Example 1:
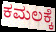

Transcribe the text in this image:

ಕಮಲಕ್ಕೆ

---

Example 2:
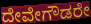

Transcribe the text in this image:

ದೇವೇಗೌಡರೇ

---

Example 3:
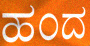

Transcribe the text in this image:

ಹಂದ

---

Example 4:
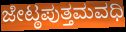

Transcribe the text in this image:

ಜೇಟ್ಠಪುತ್ತಮವಧಿ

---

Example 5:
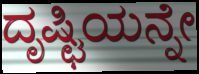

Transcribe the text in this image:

ದೃಷ್ಟಿಯನ್ನೇ